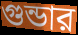
গুন্ডার